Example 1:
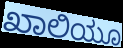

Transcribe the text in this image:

ಖಾಲಿಯೂ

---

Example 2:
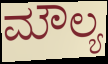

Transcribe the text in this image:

ಮೌಲ್ಯ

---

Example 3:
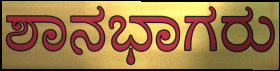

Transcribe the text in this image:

ಶಾನಭಾಗರು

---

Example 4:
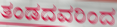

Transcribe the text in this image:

ತಂಡದವರಿಂದ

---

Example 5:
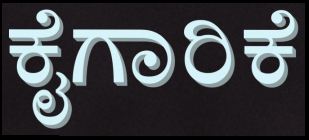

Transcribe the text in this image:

ಕೈಗಾರಿಕೆ